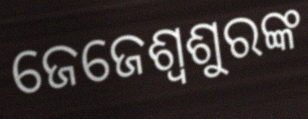
ଜେଜେଶ୍ୱଶୁରଙ୍କ